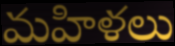
మహిళలు